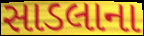
સાડલાના